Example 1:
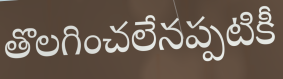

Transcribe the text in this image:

తొలగించలేనప్పటికీ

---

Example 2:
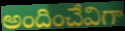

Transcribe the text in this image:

అందించేవిగా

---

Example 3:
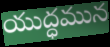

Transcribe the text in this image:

యుద్ధమున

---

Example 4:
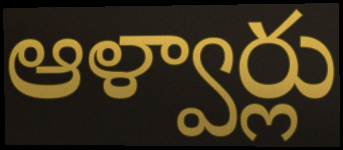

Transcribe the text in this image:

ఆళ్వార్లు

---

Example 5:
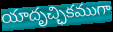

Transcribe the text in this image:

యాదృచ్ఛికముగా